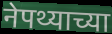
नेपथ्याच्या